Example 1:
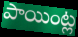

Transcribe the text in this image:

పాయింట్ల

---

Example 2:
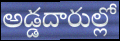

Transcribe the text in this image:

అడ్డదారుల్లో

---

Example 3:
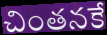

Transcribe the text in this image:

చింతనకే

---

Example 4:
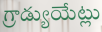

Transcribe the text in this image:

గ్రాడ్యుయేట్లు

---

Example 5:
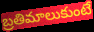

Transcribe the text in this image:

బ్రతిమాలుకుంటే